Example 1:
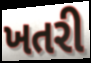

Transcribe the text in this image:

ખતરી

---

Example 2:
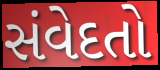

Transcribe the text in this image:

સંવેદતો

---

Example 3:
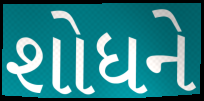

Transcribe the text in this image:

શોધને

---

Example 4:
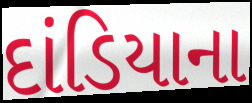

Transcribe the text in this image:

દાંડિયાના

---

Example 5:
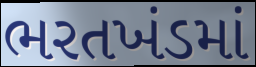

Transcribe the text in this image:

ભરતખંડમાં